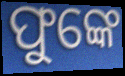
ଫୁଙ୍କେ